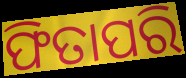
ଫିତାପରି